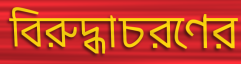
বিরুদ্ধাচরণের